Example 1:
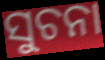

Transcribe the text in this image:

ସୁଚନା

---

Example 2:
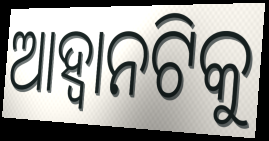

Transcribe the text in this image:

ଆହ୍ଵାନଟିକୁ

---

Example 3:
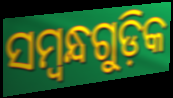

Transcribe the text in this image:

ସମ୍ବନ୍ଧଗୁଡ଼ିକ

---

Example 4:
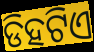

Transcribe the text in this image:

ଡିହଟିଏ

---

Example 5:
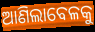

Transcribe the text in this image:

ଆଣିଲାବେଳକୁ